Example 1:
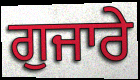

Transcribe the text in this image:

ਗੁਜਾਰੇ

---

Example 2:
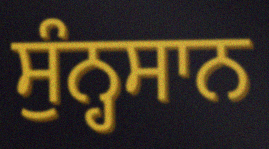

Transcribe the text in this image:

ਸੁੰਨ੍ਹਸਾਨ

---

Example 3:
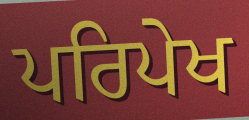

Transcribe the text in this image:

ਪਰਿਪੇਖ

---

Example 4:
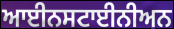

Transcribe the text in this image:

ਆਈਨਸਟਾਈਨੀਅਨ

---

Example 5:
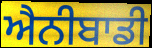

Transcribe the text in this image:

ਐਨੀਬਾਡੀ